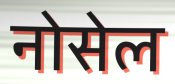
नोसेल